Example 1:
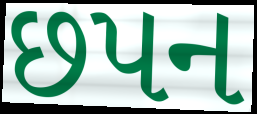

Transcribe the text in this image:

છપન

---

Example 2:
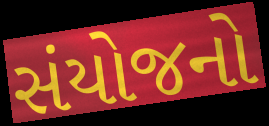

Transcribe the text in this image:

સંયોજનો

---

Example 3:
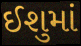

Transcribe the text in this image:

ઈશુમાં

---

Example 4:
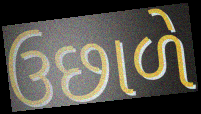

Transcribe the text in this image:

ઉછાળે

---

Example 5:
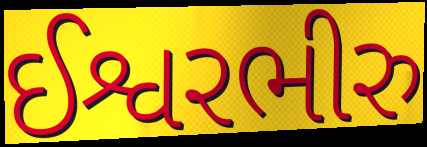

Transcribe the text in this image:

ઈશ્વરભીરુ